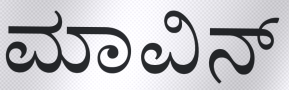
ಮಾವಿನ್